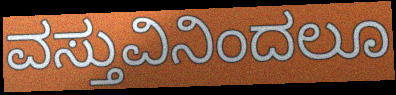
ವಸ್ತುವಿನಿಂದಲೂ